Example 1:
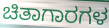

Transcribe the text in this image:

ಚಿತಾಗಾರಗಳ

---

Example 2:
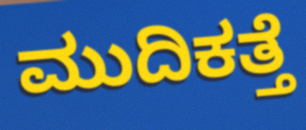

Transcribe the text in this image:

ಮುದಿಕತ್ತೆ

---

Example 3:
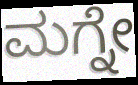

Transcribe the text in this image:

ಮಗ್ನೇ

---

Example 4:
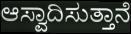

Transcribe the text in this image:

ಆಸ್ವಾದಿಸುತ್ತಾನೆ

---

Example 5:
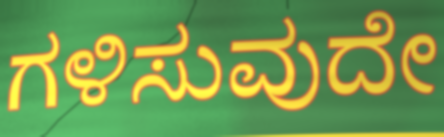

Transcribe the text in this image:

ಗಳಿಸುವುದೇ